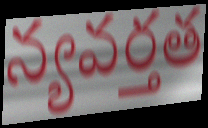
న్యవర్తత